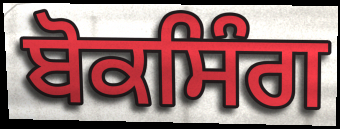
ਬੋਕਸਿੰਗ